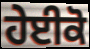
ਹੇਈਕੋ